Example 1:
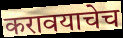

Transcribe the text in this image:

करावयाचेच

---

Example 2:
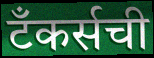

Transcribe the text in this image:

टँकर्सची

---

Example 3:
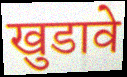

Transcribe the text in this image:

खुडावे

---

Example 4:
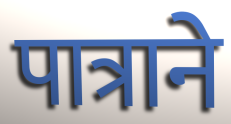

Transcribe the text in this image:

पात्राने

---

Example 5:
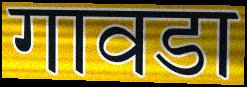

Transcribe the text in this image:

गावडा